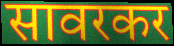
सावरकर